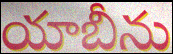
యాబీను